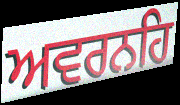
ਅਵਰਨਹਿ